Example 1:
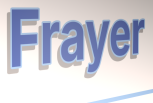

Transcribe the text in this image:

Frayer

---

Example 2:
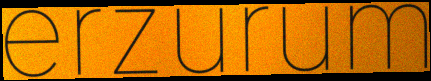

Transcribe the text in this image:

erzurum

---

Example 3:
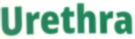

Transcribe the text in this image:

Urethra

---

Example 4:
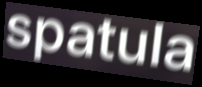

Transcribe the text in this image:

spatula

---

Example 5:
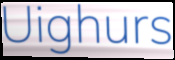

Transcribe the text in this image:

Uighurs